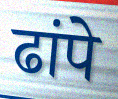
ढांपे